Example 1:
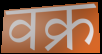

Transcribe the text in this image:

वक्र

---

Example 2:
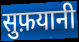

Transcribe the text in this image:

सुफ़यानी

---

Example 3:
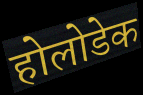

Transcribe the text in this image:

होलोडेक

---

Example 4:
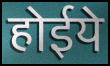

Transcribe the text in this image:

होईये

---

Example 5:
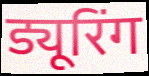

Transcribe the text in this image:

ड्यूरिंग